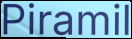
Piramil